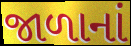
જાળાનાં